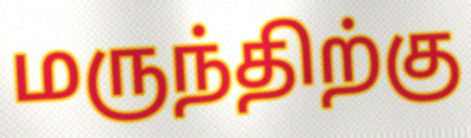
மருந்திற்கு